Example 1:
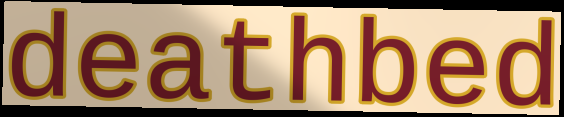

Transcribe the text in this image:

deathbed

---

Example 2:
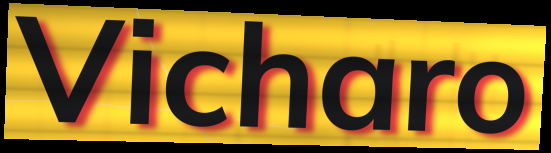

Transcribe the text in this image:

Vicharo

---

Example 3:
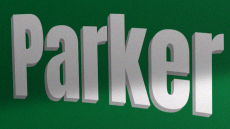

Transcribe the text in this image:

Parker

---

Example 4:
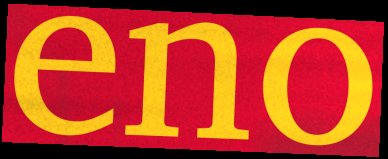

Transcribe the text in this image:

eno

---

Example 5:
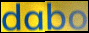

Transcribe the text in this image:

dabo